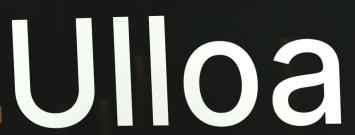
Ulloa